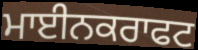
ਮਾਈਨਕਰਾਫਟ